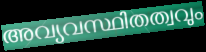
അവ്യവസ്ഥിതത്വവും